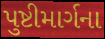
પુષ્ટીમાર્ગના